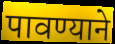
पावण्याने